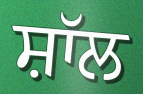
ਸ਼ਾੱਲ